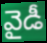
వైడీ